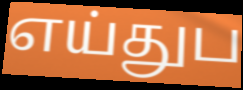
எய்துப